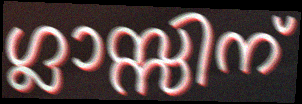
ഗ്ലാസ്സിന്